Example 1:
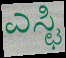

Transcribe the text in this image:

ಎಸ್ಟಿ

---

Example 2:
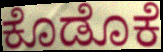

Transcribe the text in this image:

ಕೊಡೊಕೆ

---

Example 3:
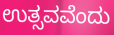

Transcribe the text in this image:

ಉತ್ಸವವೆಂದು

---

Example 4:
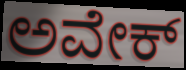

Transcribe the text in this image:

ಅವೇಕ್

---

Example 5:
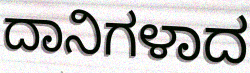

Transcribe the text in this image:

ದಾನಿಗಳಾದ